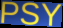
PSY